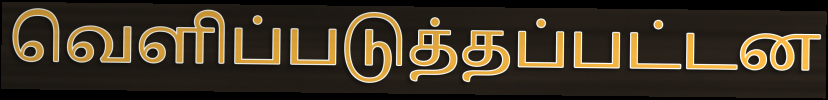
வெளிப்படுத்தப்பட்டன